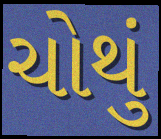
ચોથું